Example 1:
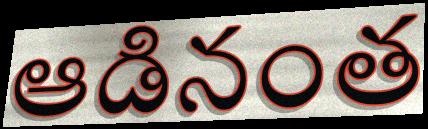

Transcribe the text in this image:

ఆడినంత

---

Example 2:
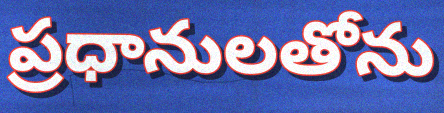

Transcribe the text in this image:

ప్రధానులతోను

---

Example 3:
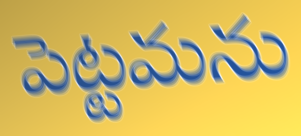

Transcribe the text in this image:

పెట్టమను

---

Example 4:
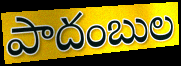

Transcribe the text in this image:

పాదంబుల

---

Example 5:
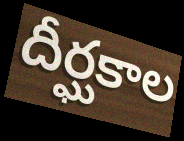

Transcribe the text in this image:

దీర్ఘకాల